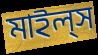
মাইল্‌স